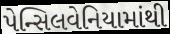
પેન્સિલવેનિયામાંથી